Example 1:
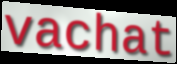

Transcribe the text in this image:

vachat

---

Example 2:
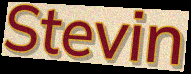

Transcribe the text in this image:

Stevin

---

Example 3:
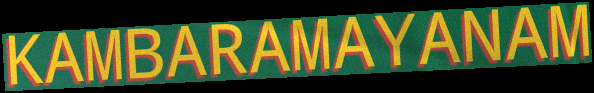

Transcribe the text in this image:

KAMBARAMAYANAM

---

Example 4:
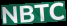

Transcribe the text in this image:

NBTC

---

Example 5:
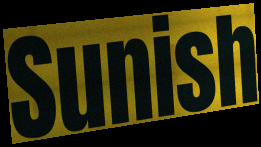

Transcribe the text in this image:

Sunish